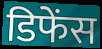
डिफेंस